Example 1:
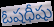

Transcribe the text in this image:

ఓషధీషు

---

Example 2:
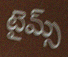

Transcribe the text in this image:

టైమ్స్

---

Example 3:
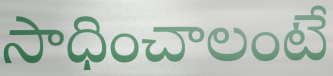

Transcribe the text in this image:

సాధించాలంటే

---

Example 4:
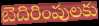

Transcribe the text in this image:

బెదిరింపులకు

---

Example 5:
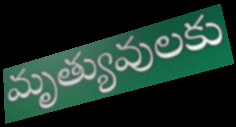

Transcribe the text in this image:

మృత్యువులకు